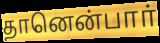
தானென்பார்